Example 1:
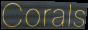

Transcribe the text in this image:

Corals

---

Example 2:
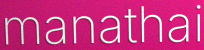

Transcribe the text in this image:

manathai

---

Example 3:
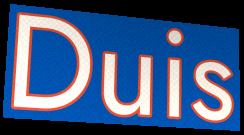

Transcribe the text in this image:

Duis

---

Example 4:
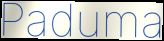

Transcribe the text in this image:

Paduma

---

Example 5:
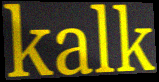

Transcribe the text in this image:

kalk